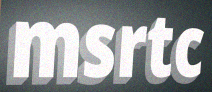
msrtc